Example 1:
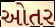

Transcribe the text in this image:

ઓતર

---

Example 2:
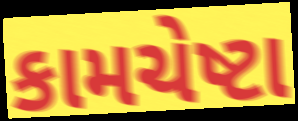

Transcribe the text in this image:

કામચેષ્ટા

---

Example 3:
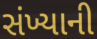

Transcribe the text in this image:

સંખ્યાની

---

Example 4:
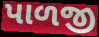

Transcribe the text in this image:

પાળજી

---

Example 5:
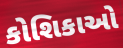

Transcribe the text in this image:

કોશિકાઓ